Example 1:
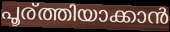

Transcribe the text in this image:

പൂര്ത്തിയാക്കാൻ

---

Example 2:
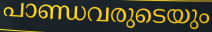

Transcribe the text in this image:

പാണ്ഡവരുടെയും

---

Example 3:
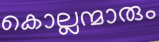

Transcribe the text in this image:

കൊല്ലന്മാരും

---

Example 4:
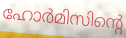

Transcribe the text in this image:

ഹോർമിസിന്റെ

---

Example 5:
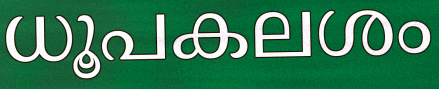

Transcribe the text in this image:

ധൂപകലശം